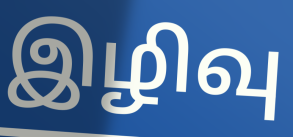
இழிவு